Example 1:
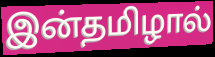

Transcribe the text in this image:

இன்தமிழால்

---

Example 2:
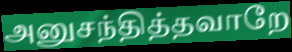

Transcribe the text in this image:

அனுசந்தித்தவாறே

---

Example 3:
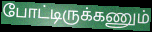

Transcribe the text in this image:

போட்டிருக்கணும்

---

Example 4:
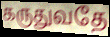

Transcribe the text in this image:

கருதுவதே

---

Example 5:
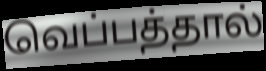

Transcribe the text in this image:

வெப்பத்தால்